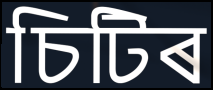
চিটিৰ